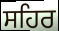
ਸਹਿਰ